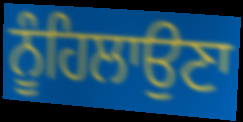
ਨੂੰਹਿਲਾਉਣਾ